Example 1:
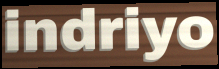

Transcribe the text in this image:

indriyo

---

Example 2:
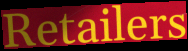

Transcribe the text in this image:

Retailers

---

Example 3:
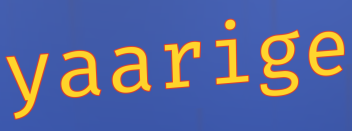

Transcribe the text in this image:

yaarige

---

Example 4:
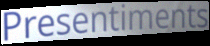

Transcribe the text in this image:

Presentiments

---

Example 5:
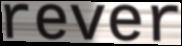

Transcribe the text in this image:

rever